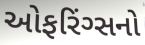
ઓફરિંગ્સનો